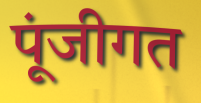
पूंजीगत